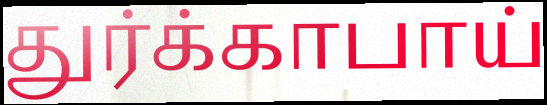
துர்க்காபாய்